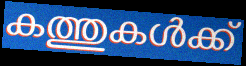
കത്തുകൾക്ക്